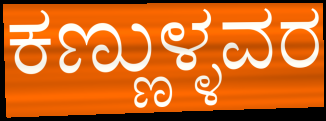
ಕಣ್ಣುಳ್ಳವರ